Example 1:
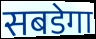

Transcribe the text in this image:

सबडेगा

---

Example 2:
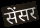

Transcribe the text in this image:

सेंसर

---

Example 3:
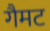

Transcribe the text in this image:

गैमट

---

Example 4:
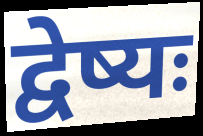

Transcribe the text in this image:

द्वेष्यः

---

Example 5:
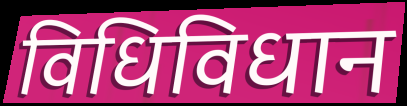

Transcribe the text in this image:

विधिविधान